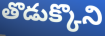
తొడుక్కొని